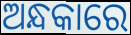
ଅନ୍ଧକାରେ